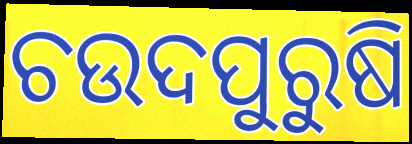
ଚଉଦପୁରୁଷି